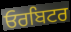
ਓਰਬਿਟਰ